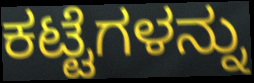
ಕಟ್ಟೆಗಳನ್ನು